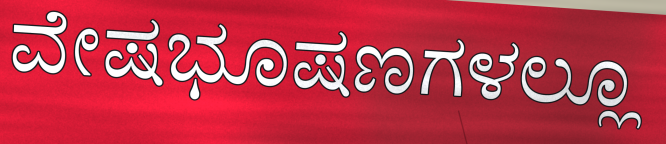
ವೇಷಭೂಷಣಗಳಲ್ಲೂ